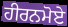
ਹੀਰਨਮੋਏ